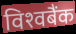
विश्वबैंक